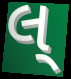
લ્